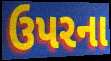
ઉપરના